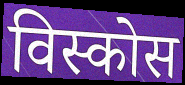
विस्कोस